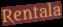
Rentala